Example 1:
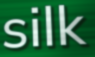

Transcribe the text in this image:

silk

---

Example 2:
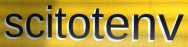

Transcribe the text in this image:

scitotenv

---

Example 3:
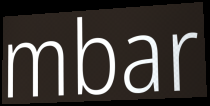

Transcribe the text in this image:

mbar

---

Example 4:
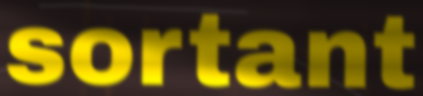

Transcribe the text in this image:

sortant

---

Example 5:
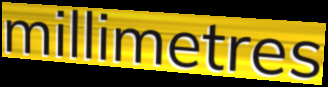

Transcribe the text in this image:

millimetres